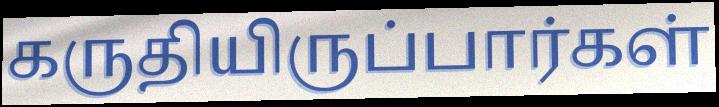
கருதியிருப்பார்கள்